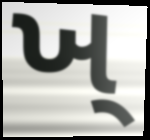
ખ્